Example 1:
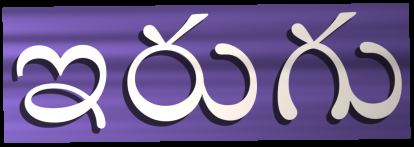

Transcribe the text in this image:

ఇరుగు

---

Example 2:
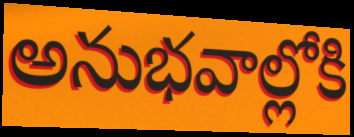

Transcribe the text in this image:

అనుభవాల్లోకి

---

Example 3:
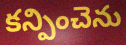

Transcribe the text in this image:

కన్పించెను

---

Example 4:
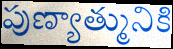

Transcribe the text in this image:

పుణ్యాత్మునికి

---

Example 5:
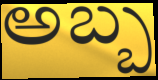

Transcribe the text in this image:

అబ్బ